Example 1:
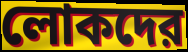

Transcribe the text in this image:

লোকদের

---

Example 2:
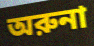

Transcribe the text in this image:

অরুনা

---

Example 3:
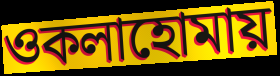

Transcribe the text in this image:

ওকলাহোমায়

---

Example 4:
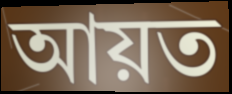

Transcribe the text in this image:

আয়ত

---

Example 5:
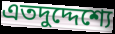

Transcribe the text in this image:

এতদুদ্দেশ্যে